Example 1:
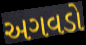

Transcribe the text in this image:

અગવડો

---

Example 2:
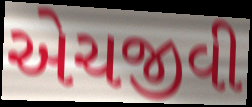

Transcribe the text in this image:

એચજીવી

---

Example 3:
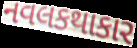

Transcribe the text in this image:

નવલકથાકાર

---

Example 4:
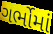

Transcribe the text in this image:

ગર્ભોમાં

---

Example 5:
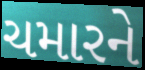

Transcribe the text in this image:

ચમારને